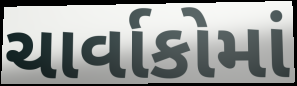
ચાર્વાકોમાં